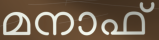
മനാഫ്